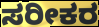
ಸರೀಕರ